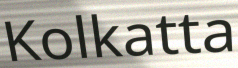
Kolkatta